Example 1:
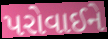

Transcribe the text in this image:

પરોવાઈને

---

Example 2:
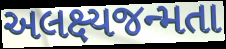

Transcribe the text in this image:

અલક્ષ્યજન્મતા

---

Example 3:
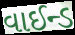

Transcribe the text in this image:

વાઈન્ડ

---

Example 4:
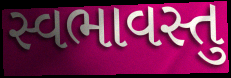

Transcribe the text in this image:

સ્વભાવસ્તુ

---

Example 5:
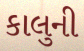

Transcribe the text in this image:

કાલુની